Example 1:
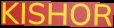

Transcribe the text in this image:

KISHOR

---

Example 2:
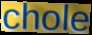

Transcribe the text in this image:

chole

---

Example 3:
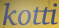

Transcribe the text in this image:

kotti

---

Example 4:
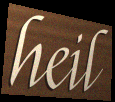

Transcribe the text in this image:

heil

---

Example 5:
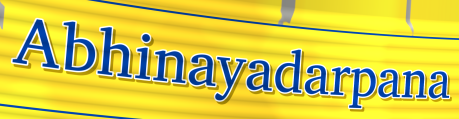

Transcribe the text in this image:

Abhinayadarpana